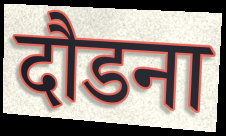
दौडना